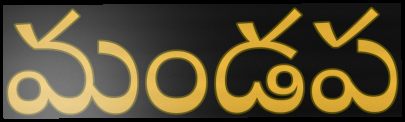
మండప